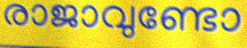
രാജാവുണ്ടോ